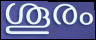
ശൂരം